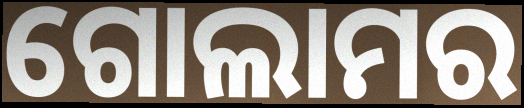
ଗୋଲାମର